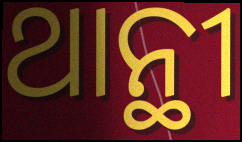
ଥାନ୍ଥୀ